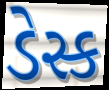
ડેસ્ક